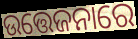
ଉତ୍ତେଜନାରେ